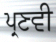
ਪ੍ਰਣਵੀ